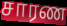
சாரண